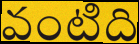
వంటిది